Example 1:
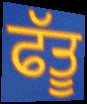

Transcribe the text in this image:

ਫੱਤੂ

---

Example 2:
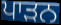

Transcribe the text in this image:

ਪਾੜਨ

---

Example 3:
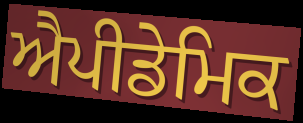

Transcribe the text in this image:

ਐਪੀਡੇਮਿਕ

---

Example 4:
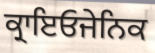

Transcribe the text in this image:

ਕ੍ਰਾਇਓਜੇਨਿਕ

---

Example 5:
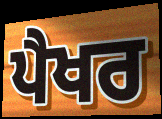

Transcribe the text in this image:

ਪੈਖਰ